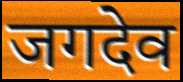
जगदेव